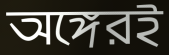
অঙ্গেরই